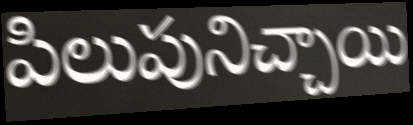
పిలుపునిచ్చాయి